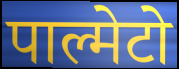
पाल्मेटो